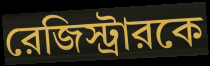
রেজিস্ট্রারকে